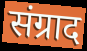
संग्राद